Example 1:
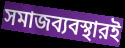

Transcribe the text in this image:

সমাজব্যবস্থারই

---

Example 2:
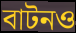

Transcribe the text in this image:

বাটনও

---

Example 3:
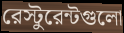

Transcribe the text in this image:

রেস্টুরেন্টগুলো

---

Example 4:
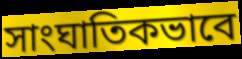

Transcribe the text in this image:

সাংঘাতিকভাবে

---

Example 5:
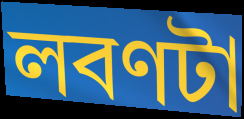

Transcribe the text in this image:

লবণটা